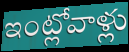
ఇంట్లోవాళ్లు